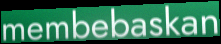
membebaskan